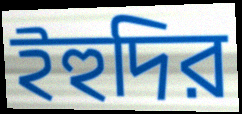
ইহুদির